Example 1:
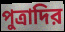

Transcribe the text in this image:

পুত্রাদির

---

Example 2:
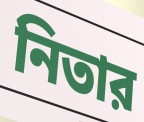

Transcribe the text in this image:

নিতার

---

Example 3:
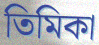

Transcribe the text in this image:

তিমিকা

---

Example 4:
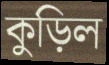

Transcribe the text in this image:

কুড়িল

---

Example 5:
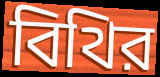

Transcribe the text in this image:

বিথির